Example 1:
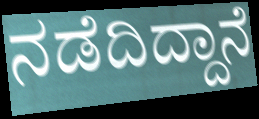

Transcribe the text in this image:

ನಡೆದಿದ್ದಾನೆ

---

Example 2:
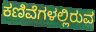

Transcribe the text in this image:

ಕಣಿವೆಗಳಲ್ಲಿರುವ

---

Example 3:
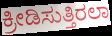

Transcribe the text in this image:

ಕ್ರೀಡಿಸುತ್ತಿರಲಾ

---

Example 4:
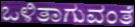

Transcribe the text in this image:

ಒಳಿತಾಗುವಂತೆ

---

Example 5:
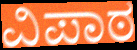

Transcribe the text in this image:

ವಿಪಾಠ